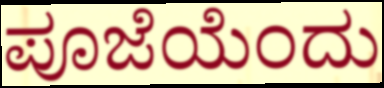
ಪೂಜೆಯೆಂದು